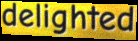
delighted